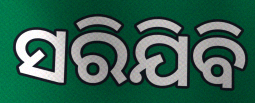
ସରିଯିବି